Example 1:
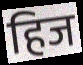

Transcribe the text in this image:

हिज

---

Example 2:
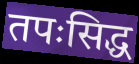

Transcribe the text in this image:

तपःसिद्ध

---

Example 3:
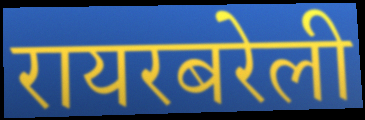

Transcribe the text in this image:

रायरबरेली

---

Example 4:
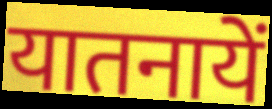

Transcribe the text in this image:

यातनायें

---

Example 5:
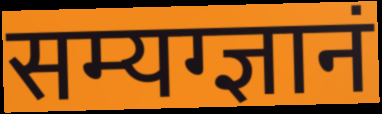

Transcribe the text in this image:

सम्यग्ज्ञानं